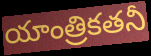
యాంత్రికతనీ